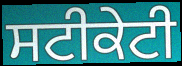
ਸਟੀਕੇਟੀ